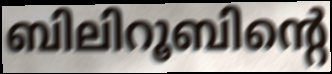
ബിലിറൂബിന്റെ